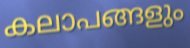
കലാപങ്ങളും